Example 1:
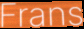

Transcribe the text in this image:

Frans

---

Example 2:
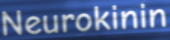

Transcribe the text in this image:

Neurokinin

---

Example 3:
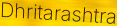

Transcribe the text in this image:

Dhritarashtra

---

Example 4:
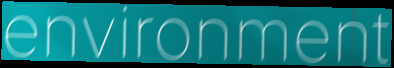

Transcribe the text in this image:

environment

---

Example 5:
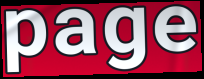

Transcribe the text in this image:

page